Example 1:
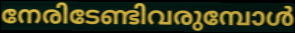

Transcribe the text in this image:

നേരിടേണ്ടിവരുമ്പോൾ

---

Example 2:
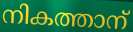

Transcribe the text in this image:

നികത്താന്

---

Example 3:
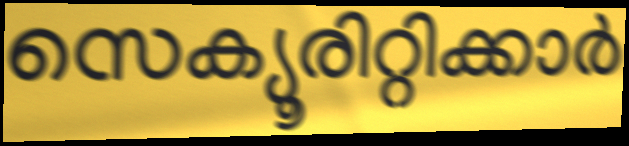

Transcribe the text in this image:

സെക്യൂരിറ്റിക്കാർ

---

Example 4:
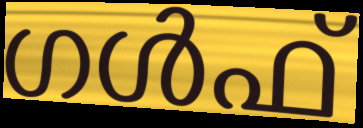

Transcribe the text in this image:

ഗൾഫ്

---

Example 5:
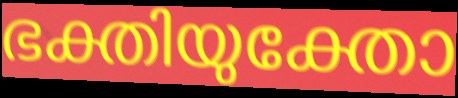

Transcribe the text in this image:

ഭക്തിയുക്തോ